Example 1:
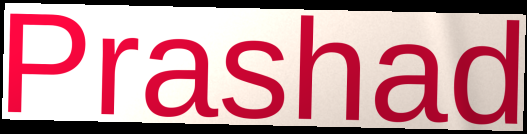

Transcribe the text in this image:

Prashad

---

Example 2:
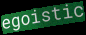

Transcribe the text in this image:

egoistic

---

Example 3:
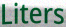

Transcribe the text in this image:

Liters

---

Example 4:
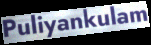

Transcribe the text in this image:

Puliyankulam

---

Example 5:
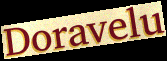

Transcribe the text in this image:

Doravelu